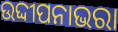
ଉଦ୍ଦୀପନାଭରା